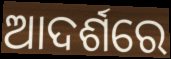
ଆଦର୍ଶରେ